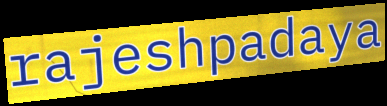
rajeshpadaya